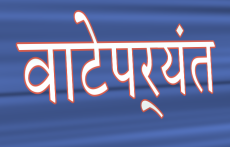
वाटेपर्यंत